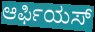
ಆರ್ಫಿಯಸ್